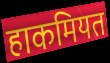
हाकमियत